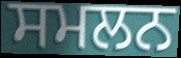
ਸਮਲਨ